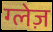
ग्लेज़